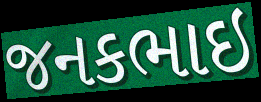
જનકભાઇ